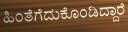
ಹಿಂತೆಗೆದುಕೊಂಡಿದ್ದಾರೆ